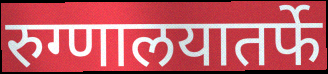
रुग्णालयातर्फे